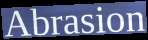
Abrasion